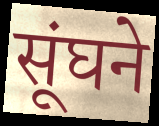
सूंघने